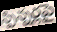
స్పిన్నర్లపై